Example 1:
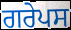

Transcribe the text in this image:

ਗਰੇਪਸ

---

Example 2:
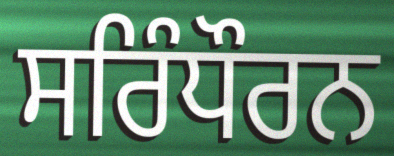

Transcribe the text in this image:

ਸਰਿੰਧੌਰਨ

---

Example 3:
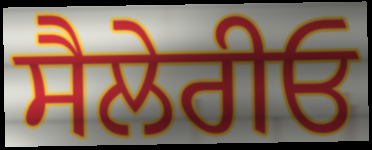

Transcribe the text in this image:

ਸੈਲੇਰੀਓ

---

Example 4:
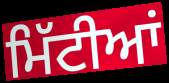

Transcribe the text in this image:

ਮਿੱਟੀਆਂ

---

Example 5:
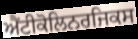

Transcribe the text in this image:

ਐਂਟੀਕੋਲਿਨਰਜਿਕਸ